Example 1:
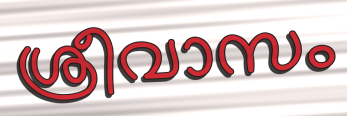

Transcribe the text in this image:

ശ്രീവാസം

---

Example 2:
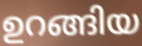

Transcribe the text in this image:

ഉറങ്ങിയ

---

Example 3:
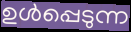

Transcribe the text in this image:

ഉൾപ്പെടുന്ന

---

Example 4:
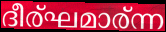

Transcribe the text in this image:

ദീര്ഘമാര്ന്ന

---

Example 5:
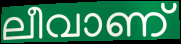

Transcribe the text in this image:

ലീവാണ്